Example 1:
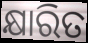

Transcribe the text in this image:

କ୍ଷାରିତ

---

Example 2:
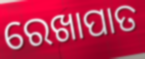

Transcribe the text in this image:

ରେଖାପାତ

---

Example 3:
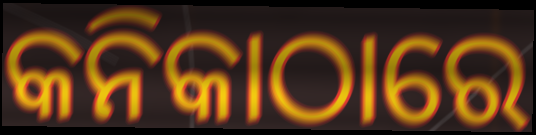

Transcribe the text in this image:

କନିକାଠାରେ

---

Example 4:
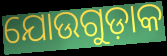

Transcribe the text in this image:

ଯୋଉଗୁଡ଼ାକ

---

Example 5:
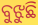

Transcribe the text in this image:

ବୁଝୁଛି